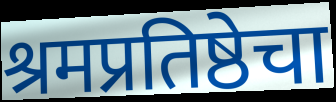
श्रमप्रतिष्ठेचा